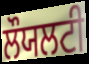
ਲੌਯਲਟੀ